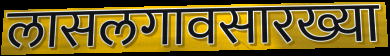
लासलगावसारख्या